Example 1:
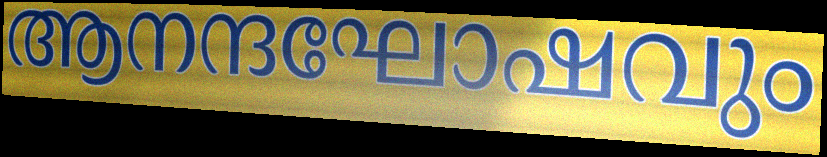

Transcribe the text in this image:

ആനന്ദഘോഷവും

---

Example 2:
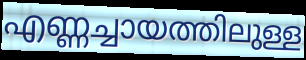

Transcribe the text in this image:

എണ്ണച്ചായത്തിലുള്ള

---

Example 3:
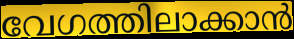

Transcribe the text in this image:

വേഗത്തിലാക്കാൻ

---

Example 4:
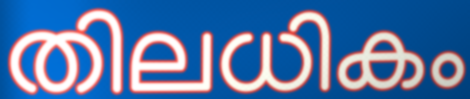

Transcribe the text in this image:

തിലധികം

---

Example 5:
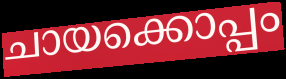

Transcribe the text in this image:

ചായക്കൊപ്പം